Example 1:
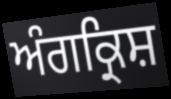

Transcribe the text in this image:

ਅੰਗਕ੍ਰਿਸ਼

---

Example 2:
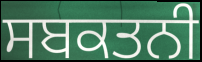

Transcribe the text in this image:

ਸਬਕਤਨੀ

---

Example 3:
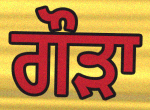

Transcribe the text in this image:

ਗੌੜਾ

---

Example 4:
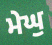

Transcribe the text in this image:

ਮੇਘੁ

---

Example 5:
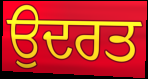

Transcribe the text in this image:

ਉਦਰਤ